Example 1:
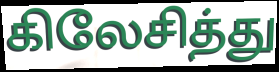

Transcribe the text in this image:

கிலேசித்து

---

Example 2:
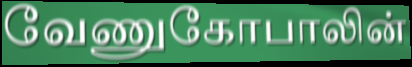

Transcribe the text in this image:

வேணுகோபாலின்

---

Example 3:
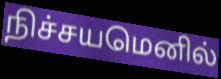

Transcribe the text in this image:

நிச்சயமெனில்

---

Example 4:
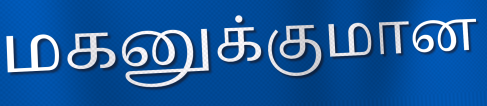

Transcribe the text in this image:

மகனுக்குமான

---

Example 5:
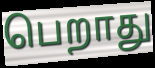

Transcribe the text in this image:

பெறாது